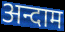
अन्दाम